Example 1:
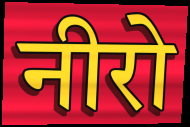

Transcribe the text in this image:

नीरो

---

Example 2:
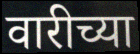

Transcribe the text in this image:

वारीच्या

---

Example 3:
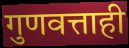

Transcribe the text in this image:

गुणवत्ताही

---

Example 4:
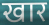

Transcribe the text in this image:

खार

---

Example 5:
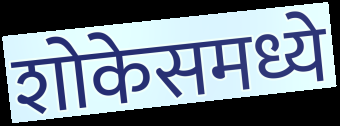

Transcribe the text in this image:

शोकेसमध्ये